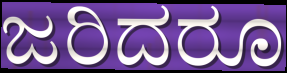
ಜರಿದರೂ